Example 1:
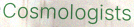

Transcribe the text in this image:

Cosmologists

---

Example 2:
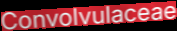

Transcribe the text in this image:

Convolvulaceae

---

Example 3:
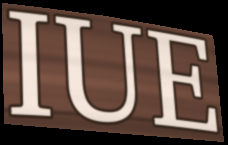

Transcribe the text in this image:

IUE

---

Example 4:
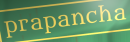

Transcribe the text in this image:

prapancha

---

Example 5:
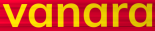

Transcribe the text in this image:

vanara